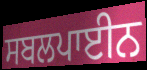
ਸਬਲਪਾਈਨ